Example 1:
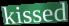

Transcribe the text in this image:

kissed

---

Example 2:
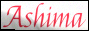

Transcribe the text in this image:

Ashima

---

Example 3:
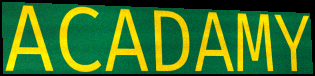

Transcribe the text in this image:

ACADAMY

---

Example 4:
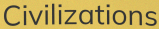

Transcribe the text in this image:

Civilizations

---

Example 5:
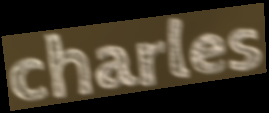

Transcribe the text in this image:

charles